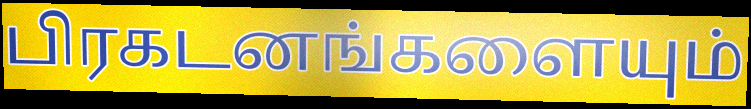
பிரகடனங்களையும்